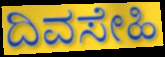
ದಿವಸೇಹಿ